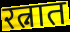
रत्नात